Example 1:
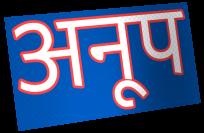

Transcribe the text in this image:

अनूप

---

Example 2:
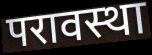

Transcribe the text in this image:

परावस्था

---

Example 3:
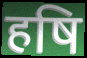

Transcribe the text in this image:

हषि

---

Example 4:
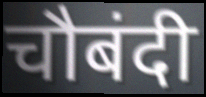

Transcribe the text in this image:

चौबंदी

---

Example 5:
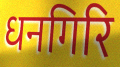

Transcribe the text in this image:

धनगिरि